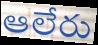
ఆలేరు